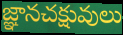
జ్ఞానచక్షువులు